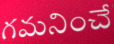
గమనించే